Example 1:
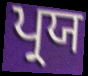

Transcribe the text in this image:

ਪ੍ਰਯ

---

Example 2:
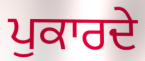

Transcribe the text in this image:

ਪੁਕਾਰਦੇ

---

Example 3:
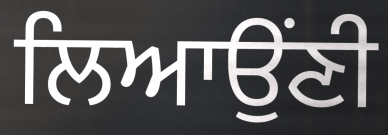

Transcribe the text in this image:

ਲਿਆਉਂਣੀ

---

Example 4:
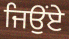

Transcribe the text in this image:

ਜਿਉਂਏ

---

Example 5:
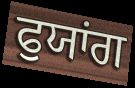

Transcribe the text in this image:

ਫੁਯਾਂਗ